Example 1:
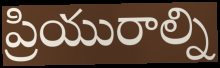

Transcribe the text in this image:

ప్రియురాల్ని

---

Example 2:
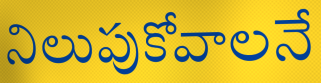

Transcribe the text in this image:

నిలుపుకోవాలనే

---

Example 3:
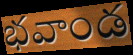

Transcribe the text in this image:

భవాండ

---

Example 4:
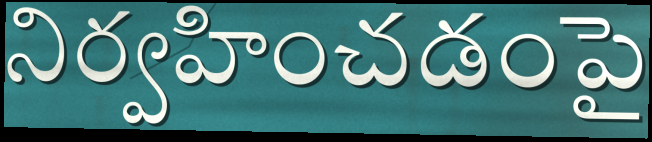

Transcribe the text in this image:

నిర్వహించడంపై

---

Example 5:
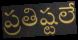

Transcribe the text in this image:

ప్రతిష్టలే